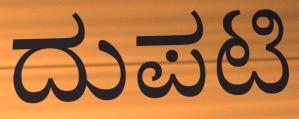
ದುಪಟಿ